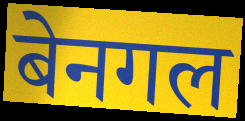
बेनगल